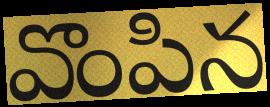
వొంపిన